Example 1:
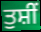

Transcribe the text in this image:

ਤੁਸ਼ੀਂ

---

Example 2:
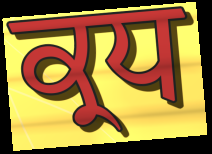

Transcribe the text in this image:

ਕ੍ਰਧ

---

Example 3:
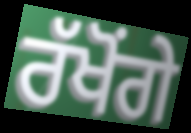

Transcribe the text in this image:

ਰੱਖੋਂਗੇ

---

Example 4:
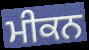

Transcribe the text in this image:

ਮੀਕਨ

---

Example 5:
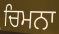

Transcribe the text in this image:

ਚਿਮਨਾ